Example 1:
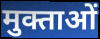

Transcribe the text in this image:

मुक्ताओं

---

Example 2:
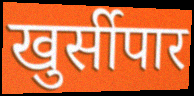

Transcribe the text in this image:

खुर्सीपार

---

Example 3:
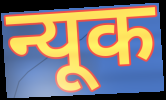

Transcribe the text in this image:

न्यूक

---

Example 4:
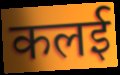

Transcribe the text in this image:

कलई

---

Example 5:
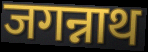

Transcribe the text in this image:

जगन्नाथ